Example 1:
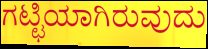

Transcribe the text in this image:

ಗಟ್ಟಿಯಾಗಿರುವುದು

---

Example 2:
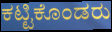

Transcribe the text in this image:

ಕಟ್ಟಿಕೊಂಡರು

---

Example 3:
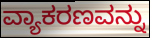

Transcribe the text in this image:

ವ್ಯಾಕರಣವನ್ನು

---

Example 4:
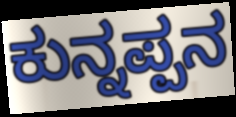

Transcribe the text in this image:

ಕುನ್ನಪ್ಪನ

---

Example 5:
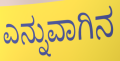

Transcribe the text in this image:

ಎನ್ನುವಾಗಿನ